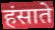
हंसाते